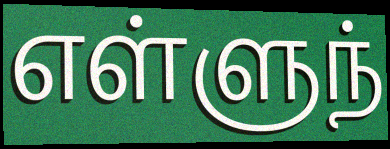
எள்ளுந்